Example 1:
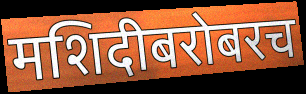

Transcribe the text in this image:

मशिदीबरोबरच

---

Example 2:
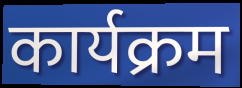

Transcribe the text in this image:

कार्यक्रम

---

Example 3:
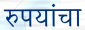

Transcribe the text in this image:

रुपयांचा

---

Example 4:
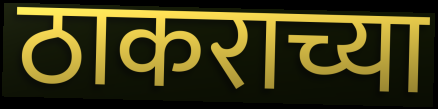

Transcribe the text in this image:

ठाकराच्या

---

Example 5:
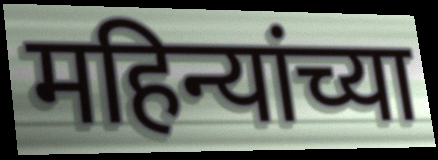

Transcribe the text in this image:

महिन्यांच्या